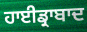
ਹਾਈਡ੍ਰਾਬਾਦ